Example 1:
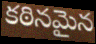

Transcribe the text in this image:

కఠినమైన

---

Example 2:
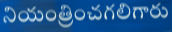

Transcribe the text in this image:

నియంత్రించగలిగారు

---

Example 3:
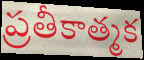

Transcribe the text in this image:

ప్రతీకాత్మక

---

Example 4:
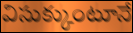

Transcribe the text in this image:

విసుక్కుంటూనే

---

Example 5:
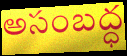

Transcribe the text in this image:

అసంబద్ధ